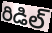
రిడిల్